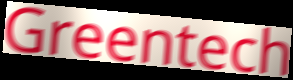
Greentech